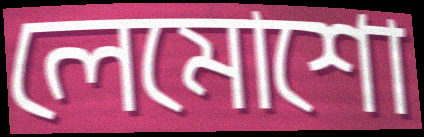
লেমোশো